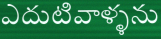
ఎదుటివాళ్ళను